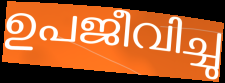
ഉപജീവിച്ചു